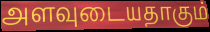
அளவுடையதாகும்